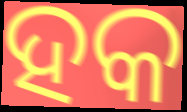
ହକ